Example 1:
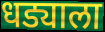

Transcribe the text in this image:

धड्याला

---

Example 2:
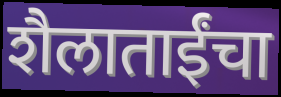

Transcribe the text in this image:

शैलाताईंचा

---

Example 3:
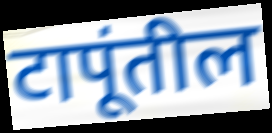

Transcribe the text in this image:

टापूंतील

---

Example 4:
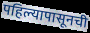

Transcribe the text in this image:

पहिल्यापासूनची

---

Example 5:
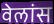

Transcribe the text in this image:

वेलांस